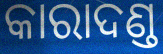
କାରାଦଣ୍ଡ